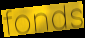
fonds